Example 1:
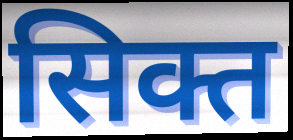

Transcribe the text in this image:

सिक्त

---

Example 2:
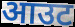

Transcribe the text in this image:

आउट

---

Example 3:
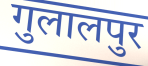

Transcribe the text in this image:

गुलालपुर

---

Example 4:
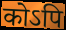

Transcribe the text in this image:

कोऽपि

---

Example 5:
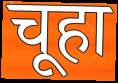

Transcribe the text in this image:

चूहा